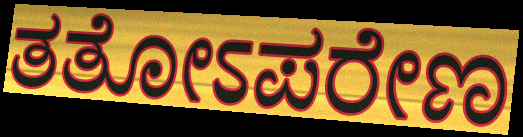
ತತೋಽಪರೇಣ